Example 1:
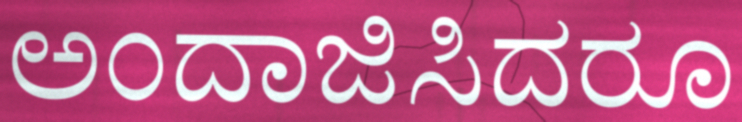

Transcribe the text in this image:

ಅಂದಾಜಿಸಿದರೂ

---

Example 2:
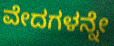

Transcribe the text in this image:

ವೇದಗಳನ್ನೇ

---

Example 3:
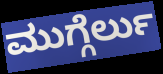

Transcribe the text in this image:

ಮುಗ್ಗೆರ್ಲು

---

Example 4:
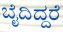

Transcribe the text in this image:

ಬೈದಿದ್ದರೆ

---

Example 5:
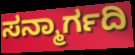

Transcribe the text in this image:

ಸನ್ಮಾರ್ಗದಿ